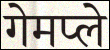
गेमप्ले